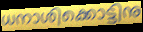
ധനാശിക്കൊട്ടിനു